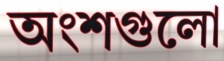
অংশগুলো